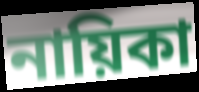
নায়িকা